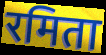
रमिता